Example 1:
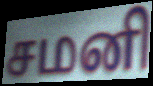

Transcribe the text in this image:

சமனி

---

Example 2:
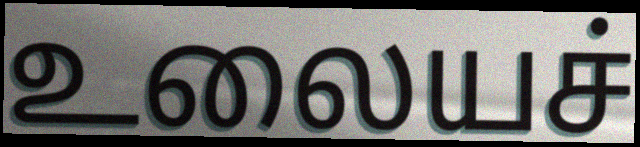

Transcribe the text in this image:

உலையச்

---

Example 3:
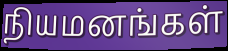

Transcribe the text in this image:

நியமனங்கள்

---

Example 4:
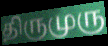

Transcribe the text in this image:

திருமுரு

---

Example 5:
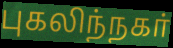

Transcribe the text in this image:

புகலிந்நகர்